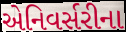
એનિવર્સરીના